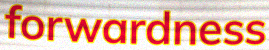
forwardness